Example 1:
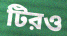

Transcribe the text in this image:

টিরও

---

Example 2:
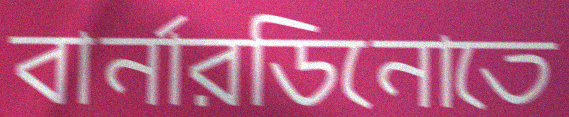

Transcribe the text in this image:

বার্নারডিনোতে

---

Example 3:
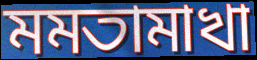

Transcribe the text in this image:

মমতামাখা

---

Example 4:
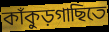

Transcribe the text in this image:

কাঁকুড়গাছিতে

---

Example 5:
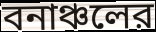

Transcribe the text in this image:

বনাঞ্চলের